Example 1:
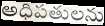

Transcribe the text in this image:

అధిపతులను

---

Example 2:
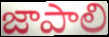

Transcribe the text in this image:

జాపాలి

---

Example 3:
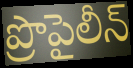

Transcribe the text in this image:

ప్రొపైలీన్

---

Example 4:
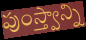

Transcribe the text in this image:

పుంస్త్వాన్ని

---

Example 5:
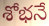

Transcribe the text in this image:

శోభనే